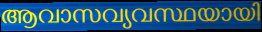
ആവാസവ്യവസ്ഥയായി